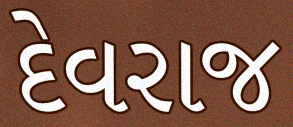
દેવરાજ